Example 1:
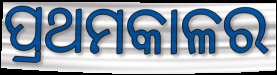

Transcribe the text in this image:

ପ୍ରଥମକାଳର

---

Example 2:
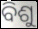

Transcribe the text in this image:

ବିଶୁ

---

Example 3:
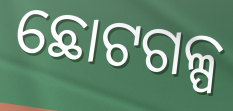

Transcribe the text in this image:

ଛୋଟଗଳ୍ପ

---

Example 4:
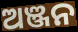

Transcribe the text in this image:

ଅଞ୍ଜନ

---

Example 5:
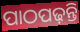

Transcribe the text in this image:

ପାଠପଢ଼ନ୍ତି